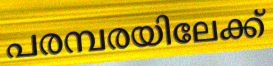
പരമ്പരയിലേക്ക്